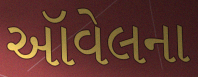
ઑવેલના